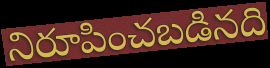
నిరూపించబడినది